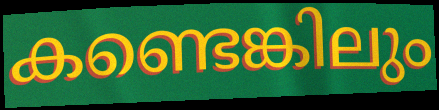
കണ്ടെങ്കിലും